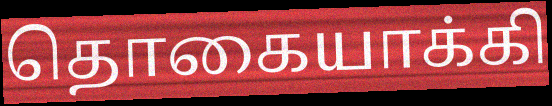
தொகையாக்கி